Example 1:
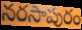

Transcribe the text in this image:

నరసాపురం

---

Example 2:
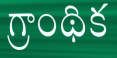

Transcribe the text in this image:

గ్రాంథిక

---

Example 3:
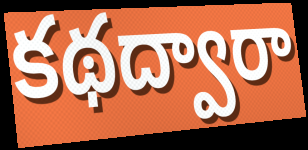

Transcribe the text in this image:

కథద్వారా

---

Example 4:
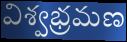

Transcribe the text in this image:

విశ్వభ్రమణ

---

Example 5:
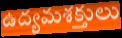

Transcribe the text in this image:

ఉద్యమశక్తులు